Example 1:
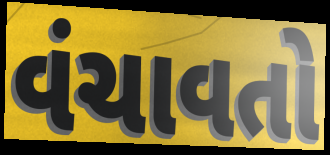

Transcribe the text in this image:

વંચાવતો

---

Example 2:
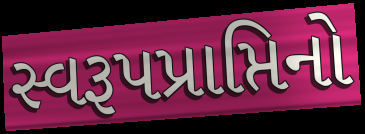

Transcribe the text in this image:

સ્વરૂપપ્રાપ્તિનો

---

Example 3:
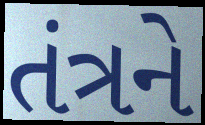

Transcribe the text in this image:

તંત્રને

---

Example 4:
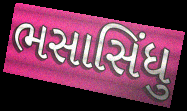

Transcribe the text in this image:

ભસાસિંધુ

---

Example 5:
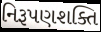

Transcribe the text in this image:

નિરૂપણશક્તિ